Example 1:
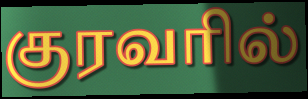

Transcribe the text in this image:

குரவரில்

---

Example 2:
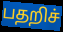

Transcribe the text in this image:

பதறிச்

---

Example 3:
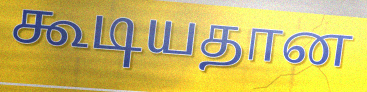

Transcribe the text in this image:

கூடியதான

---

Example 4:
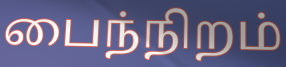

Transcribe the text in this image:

பைந்நிறம்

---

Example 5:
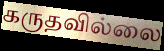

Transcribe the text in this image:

கருதவில்லை